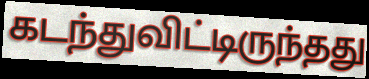
கடந்துவிட்டிருந்தது